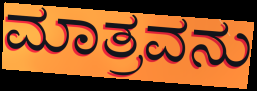
ಮಾತ್ರವನು